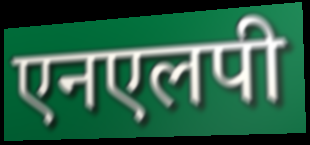
एनएलपी